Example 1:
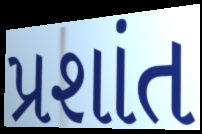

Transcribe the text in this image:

પ્રશાંત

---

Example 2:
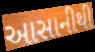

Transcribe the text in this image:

આસાનીથી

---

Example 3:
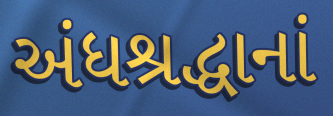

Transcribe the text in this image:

અંધશ્રદ્ધાનાં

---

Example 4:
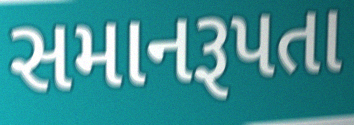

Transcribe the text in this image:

સમાનરૂપતા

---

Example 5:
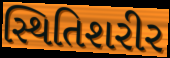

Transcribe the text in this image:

સ્થિતિશરીર